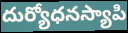
దుర్యోధనస్యాపి